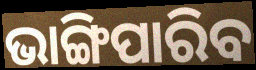
ଭାଙ୍ଗିପାରିବ